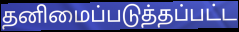
தனிமைப்படுத்தப்பட்ட